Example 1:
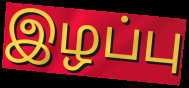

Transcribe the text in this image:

இழப்பு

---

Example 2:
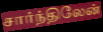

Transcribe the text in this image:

சார்ந்திலேன்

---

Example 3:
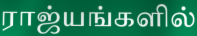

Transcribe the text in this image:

ராஜ்யங்களில்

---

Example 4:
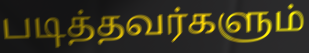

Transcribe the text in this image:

படித்தவர்களும்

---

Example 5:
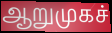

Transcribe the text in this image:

ஆறுமுகச்